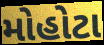
મોહોટા